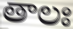
తాలః